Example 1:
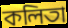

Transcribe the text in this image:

কলিতা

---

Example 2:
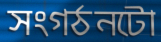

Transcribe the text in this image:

সংগঠনটো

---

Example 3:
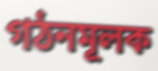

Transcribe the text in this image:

গঠনমূলক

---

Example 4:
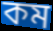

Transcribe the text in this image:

কম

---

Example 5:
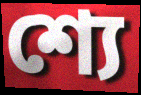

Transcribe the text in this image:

শ্যে